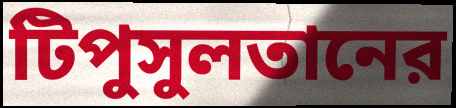
টিপুসুলতানের